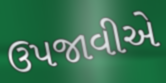
ઉપજાવીએ